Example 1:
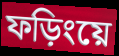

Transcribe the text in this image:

ফড়িংয়ে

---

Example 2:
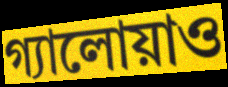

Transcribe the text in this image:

গ্যালোয়াও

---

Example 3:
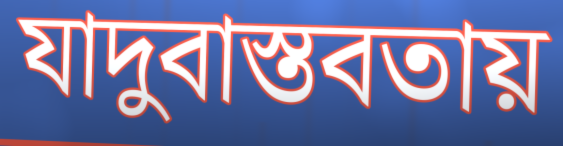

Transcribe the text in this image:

যাদুবাস্তবতায়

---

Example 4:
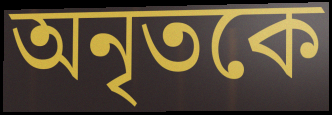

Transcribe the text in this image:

অনৃতকে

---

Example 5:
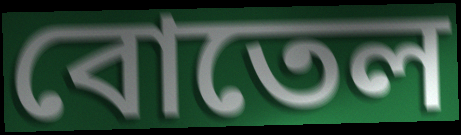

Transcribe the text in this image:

বোতেল